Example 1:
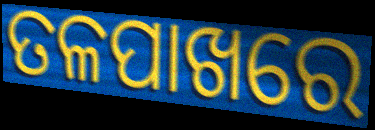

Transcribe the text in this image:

ତଳପାଖରେ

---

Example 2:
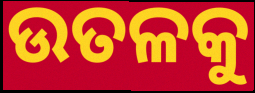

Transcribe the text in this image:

ଉତଳକୁ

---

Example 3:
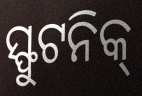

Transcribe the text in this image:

ସ୍ଫୁଟନିକ୍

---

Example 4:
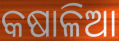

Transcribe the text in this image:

କଷାଳିଆ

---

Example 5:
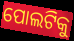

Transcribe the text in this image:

ପୋଲଟିକୁ